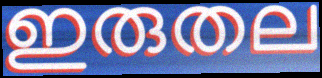
ഇരുതല